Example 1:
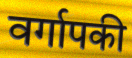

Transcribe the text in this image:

वर्गापकी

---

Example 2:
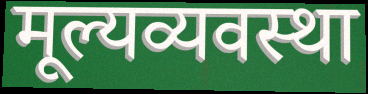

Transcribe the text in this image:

मूल्यव्यवस्था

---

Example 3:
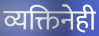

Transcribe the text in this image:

व्यक्तिनेही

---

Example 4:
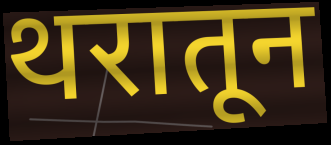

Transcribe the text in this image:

थरातून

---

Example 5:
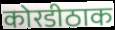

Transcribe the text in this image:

कोरडीठाक